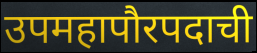
उपमहापौरपदाची